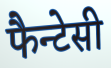
फैन्टेसी